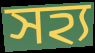
সহ্য